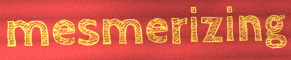
mesmerizing